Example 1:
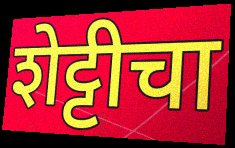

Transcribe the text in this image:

शेट्टीचा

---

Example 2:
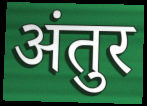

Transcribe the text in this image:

अंतुर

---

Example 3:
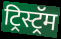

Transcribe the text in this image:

ट्रिस्ट्रॅम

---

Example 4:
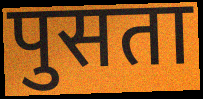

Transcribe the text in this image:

पुसता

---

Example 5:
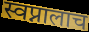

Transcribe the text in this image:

स्वप्नालाच